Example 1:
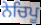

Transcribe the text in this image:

ਨੇਚਿਪੂ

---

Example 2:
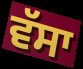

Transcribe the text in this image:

ਵੱਸਾ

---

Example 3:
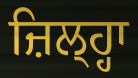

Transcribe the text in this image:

ਜ਼ਿਲ੍ਹ੍ਹਾ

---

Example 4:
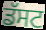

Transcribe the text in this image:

ਡੱਸਟ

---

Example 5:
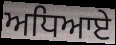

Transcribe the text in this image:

ਅਧਿਆਏ